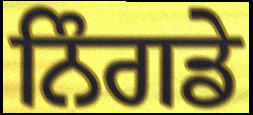
ਨਿੰਗਡੇ